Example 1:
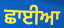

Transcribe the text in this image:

ਛਾਈਆ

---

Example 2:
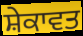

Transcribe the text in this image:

ਸ਼ੇਕਾਵਤ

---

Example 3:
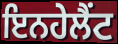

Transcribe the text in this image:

ਇਨਹੇਲੈਂਟ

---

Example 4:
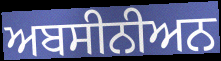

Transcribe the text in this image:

ਅਬਸੀਨੀਅਨ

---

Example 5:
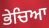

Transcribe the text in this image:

ਭੇਚਿਆ